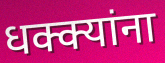
धक्क्यांना